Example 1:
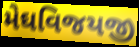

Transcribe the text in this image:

મેઘવિજયજી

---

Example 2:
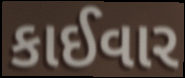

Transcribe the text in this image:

કાઈવાર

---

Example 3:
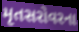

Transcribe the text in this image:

મૃતસરોવરના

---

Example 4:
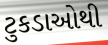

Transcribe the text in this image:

ટુકડાઓથી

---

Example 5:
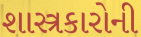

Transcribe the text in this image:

શાસ્ત્રકારોની